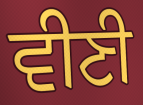
ਵੀਣੀ